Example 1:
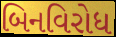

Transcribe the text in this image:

બિનવિરોધ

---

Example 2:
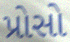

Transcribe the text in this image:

પ્રોસો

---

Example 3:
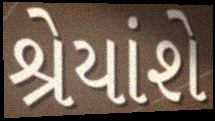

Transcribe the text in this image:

શ્રેયાંશે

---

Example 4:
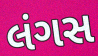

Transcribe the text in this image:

લંગસ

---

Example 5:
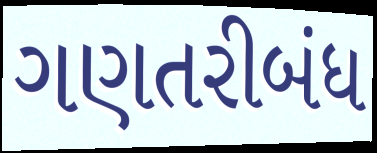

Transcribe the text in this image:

ગણતરીબંધ